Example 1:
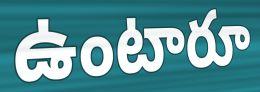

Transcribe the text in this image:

ఉంటారూ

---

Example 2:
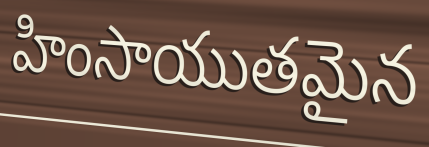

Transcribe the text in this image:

హింసాయుతమైన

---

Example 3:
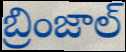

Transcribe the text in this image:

బ్రింజాల్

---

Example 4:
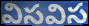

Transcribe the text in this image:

విసవిస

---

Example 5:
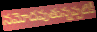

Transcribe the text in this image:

నమోదవుతున్నప్పటికీ